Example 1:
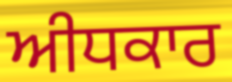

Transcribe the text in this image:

ਅੀਧਕਾਰ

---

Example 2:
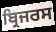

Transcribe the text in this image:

ਬ੍ਰਿਜਰਸ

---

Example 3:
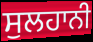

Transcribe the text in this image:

ਸੁਲਹਾਨੀ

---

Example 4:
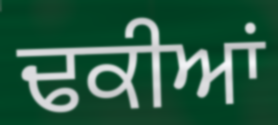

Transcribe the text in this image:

ਢਕੀਆਂ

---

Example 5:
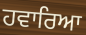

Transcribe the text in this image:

ਹਵਾਰਿਆ